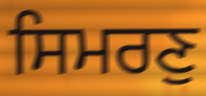
ਸਿਮਰਣੁ